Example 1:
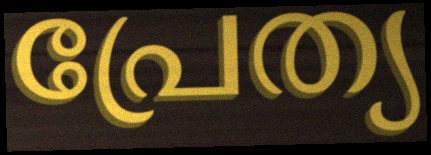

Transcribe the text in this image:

പ്രേത്യ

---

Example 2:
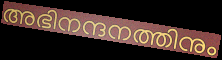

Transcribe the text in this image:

അഭിനന്ദനത്തിനും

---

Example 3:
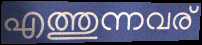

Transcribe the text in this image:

എത്തുന്നവര്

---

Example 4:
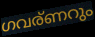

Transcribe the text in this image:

ഗവര്ണറും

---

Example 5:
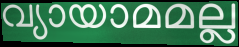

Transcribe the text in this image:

വ്യായാമമല്ല